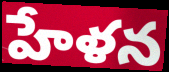
హేళన